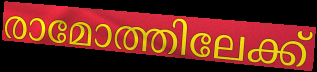
രാമോത്തിലേക്ക്